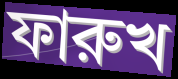
ফারুখ